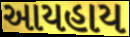
આયહાય